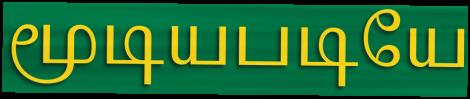
மூடியபடியே